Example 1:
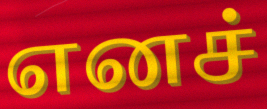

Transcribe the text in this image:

எனச்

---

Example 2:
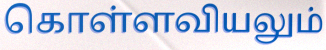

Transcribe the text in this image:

கொள்ளவியலும்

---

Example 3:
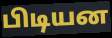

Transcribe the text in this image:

பிடியன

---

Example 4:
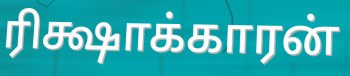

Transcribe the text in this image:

ரிக்ஷாக்காரன்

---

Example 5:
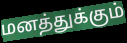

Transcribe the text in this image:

மனத்துக்கும்